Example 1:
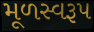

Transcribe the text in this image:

મૂળસ્વરૂપ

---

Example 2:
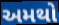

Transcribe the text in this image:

અમથો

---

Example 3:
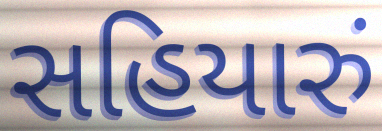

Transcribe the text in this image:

સહિયારું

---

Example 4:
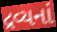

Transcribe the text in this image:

દ્રવ્યનાં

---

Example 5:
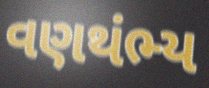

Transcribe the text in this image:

વણથંભ્ય